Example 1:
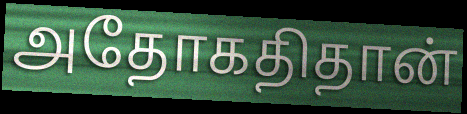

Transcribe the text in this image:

அதோகதிதான்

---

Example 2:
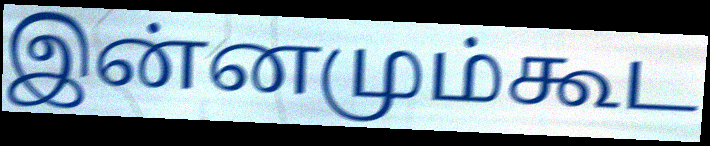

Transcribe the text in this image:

இன்னமும்கூட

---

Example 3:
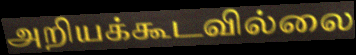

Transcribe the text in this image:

அறியக்கூடவில்லை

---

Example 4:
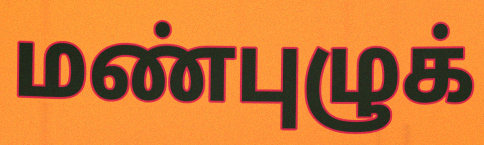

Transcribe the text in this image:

மண்புழுக்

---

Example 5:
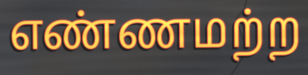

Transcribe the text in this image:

எண்ணமற்ற